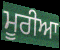
ਮੂਰੀਆ